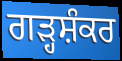
ਗੜ੍ਹਸ਼ੰਕਰ